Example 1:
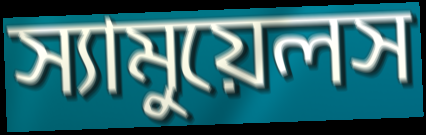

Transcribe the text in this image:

স্যামুয়েলস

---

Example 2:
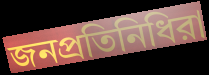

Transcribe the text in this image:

জনপ্রতিনিধিরা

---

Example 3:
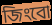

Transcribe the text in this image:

জিংবো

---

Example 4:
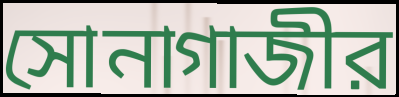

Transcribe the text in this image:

সোনাগাজীর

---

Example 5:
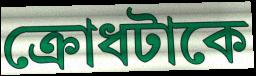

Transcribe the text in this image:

ক্রোধটাকে